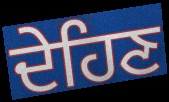
ਦੇਹਿਣ